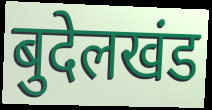
बुदेलखंड